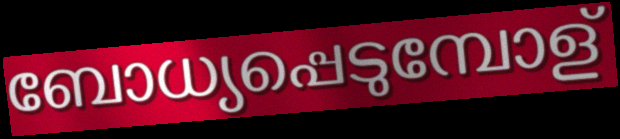
ബോധ്യപ്പെടുമ്പോള്